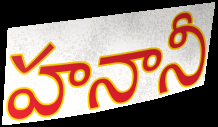
హనానీ